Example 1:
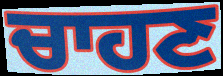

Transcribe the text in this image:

ਚਾਹਣ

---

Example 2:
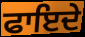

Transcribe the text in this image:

ਫਾਇਦੇ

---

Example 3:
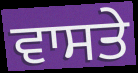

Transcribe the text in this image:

ਵਾਸਤੇ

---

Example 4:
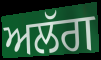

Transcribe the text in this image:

ਅਲੱਗ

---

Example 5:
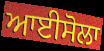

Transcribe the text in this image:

ਆਈਸੋਲਾ